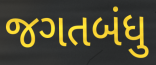
જગતબંધુ